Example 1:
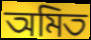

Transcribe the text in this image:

অমিত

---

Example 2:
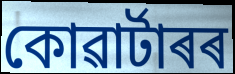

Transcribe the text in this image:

কোৱাৰ্টাৰৰ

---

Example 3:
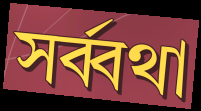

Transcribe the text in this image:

সৰ্ব্বথা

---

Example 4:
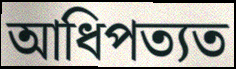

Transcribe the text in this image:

আধিপত্যত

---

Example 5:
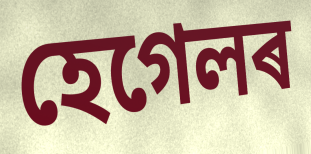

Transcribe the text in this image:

হেগেলৰ